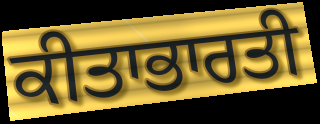
ਕੀਤਾਭਾਰਤੀ